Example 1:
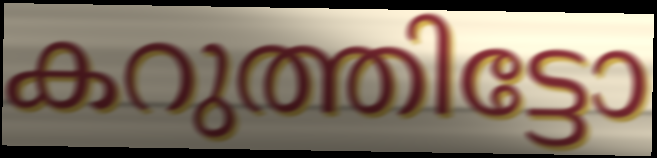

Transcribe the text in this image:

കറുത്തിട്ടോ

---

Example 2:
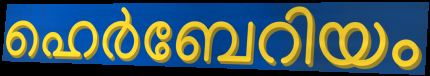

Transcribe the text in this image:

ഹെർബേറിയം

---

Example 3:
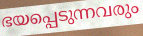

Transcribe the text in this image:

ഭയപ്പെടുന്നവരും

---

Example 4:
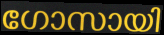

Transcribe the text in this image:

ഗോസായി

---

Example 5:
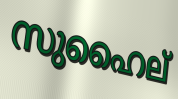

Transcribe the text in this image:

സുഹൈല്